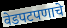
वेडपटपणाचे